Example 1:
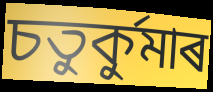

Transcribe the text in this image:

চতুৰ্কুমাৰ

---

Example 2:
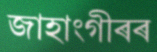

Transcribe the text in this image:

জাহাংগীৰৰ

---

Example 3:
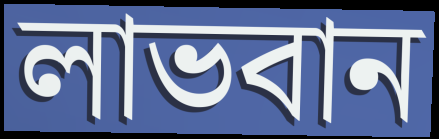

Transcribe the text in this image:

লাভবান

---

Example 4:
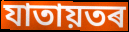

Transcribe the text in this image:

যাতায়তৰ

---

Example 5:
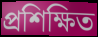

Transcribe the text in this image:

প্ৰশিক্ষিত